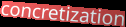
concretization